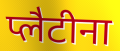
प्लैटीना